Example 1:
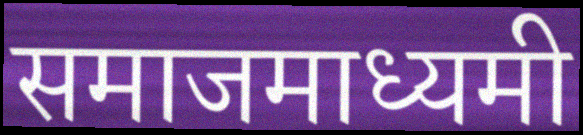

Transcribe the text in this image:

समाजमाध्यमी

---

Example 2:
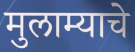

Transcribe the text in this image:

मुलाम्याचे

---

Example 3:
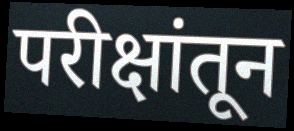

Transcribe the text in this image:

परीक्षांतून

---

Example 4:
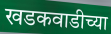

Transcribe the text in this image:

खडकवाडीच्या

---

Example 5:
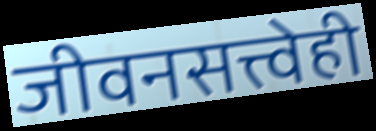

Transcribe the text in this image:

जीवनसत्त्वेही